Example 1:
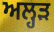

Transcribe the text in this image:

ਅਲ੍ਹੜ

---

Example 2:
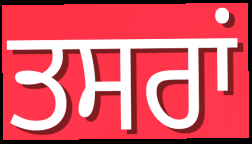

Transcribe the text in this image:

ਤਸਰਾਂ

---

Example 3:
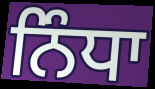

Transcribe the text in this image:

ਨਿੰਧਾ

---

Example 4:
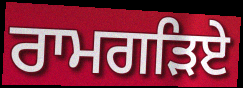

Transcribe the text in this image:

ਰਾਮਗੜਿਏ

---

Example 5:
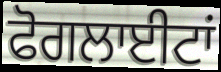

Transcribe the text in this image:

ਫੋਗਲਾਈਟਾਂ